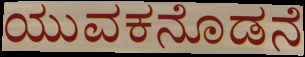
ಯುವಕನೊಡನೆ